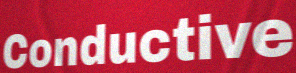
Conductive